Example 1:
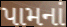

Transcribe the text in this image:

પામનાં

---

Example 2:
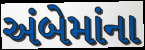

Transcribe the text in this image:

અંબેમાંના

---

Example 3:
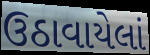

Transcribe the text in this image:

ઉઠાવાયેલાં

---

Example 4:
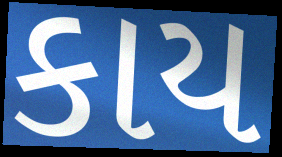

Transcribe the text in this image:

કાય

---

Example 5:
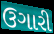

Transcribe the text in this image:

ઉગારી